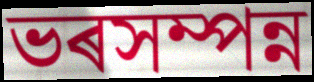
ভৰসম্পন্ন